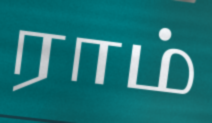
ராம்